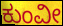
ಕುಂವೀ